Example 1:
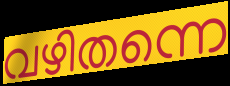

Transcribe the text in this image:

വഴിതന്നെ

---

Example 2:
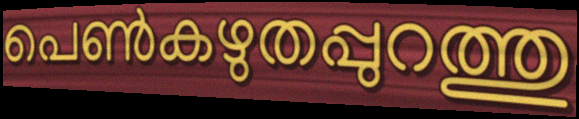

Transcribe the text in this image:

പെൺകഴുതപ്പുറത്തു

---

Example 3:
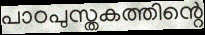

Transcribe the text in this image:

പാഠപുസ്തകത്തിന്റെ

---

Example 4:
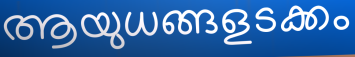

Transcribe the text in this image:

ആയുധങ്ങളടക്കം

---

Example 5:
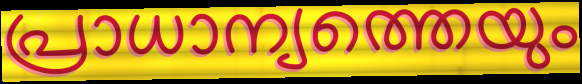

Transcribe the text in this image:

പ്രാധാന്യത്തെയും